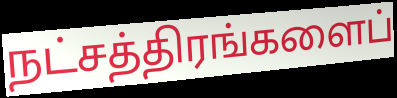
நட்சத்திரங்களைப்